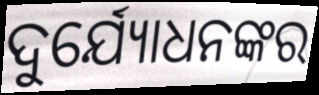
ଦୁର୍ଯ୍ୟୋଧନଙ୍କର